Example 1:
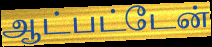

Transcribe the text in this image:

ஆட்பட்டேன்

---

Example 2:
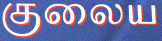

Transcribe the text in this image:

குலைய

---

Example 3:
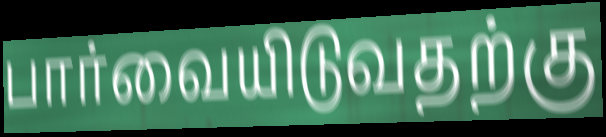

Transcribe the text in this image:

பார்வையிடுவதற்கு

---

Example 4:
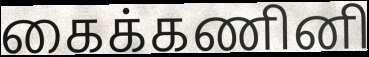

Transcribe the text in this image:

கைக்கணினி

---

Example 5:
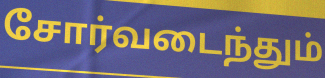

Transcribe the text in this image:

சோர்வடைந்தும்